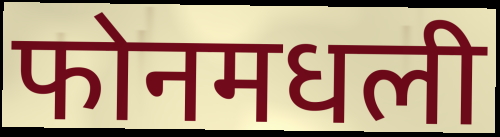
फोनमधली